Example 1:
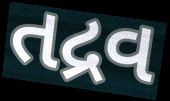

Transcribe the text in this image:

તદ્રવ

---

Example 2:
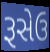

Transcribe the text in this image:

રૂસેઉ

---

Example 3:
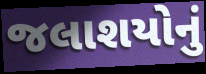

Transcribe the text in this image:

જલાશયોનું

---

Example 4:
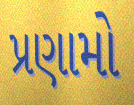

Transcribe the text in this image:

પ્રણામો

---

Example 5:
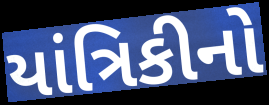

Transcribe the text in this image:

યાંત્રિકીનો